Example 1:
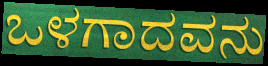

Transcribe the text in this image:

ಒಳಗಾದವನು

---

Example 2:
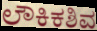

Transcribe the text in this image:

ಲೌಕಿಕಶಿವ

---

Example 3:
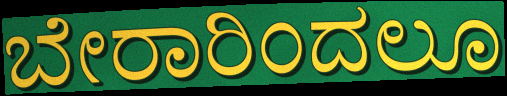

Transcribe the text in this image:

ಬೇರಾರಿಂದಲೂ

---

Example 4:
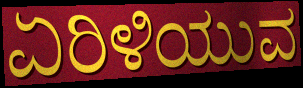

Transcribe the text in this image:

ಏರಿಳಿಯುವ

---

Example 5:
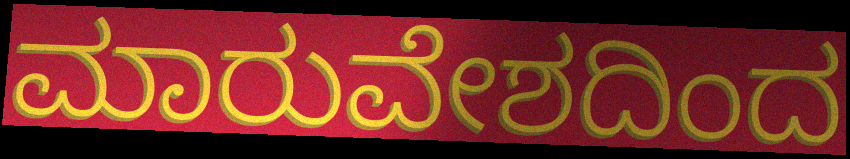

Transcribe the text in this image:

ಮಾರುವೇಶದಿಂದ